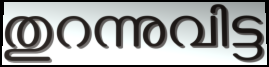
തുറന്നുവിട്ട